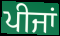
ਪੀਜਾਂ